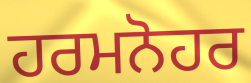
ਹਰਮਨੋਹਰ